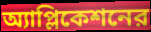
অ্যাপ্লিকেশনের